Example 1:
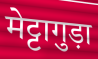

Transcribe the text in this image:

मेट्टागुड़ा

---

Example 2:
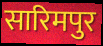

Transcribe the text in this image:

सारिमपुर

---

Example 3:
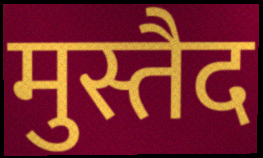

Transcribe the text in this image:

मुस्तैद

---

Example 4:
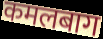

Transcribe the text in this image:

कमलबाग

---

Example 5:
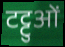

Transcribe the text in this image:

टट्टुओं